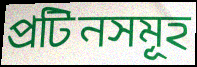
প্ৰটিনসমূহ